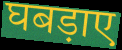
घबड़ाए